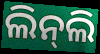
ଲିନ୍‌ଲି